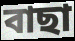
বাছা